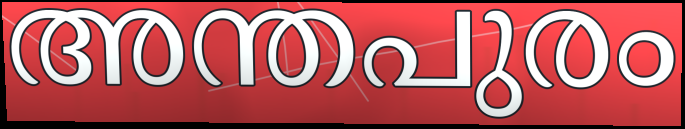
അന്തപുരം